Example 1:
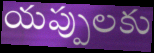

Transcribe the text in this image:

యప్పులకు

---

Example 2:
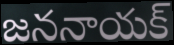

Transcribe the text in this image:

జననాయక్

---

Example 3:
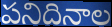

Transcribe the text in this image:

పనిదినాల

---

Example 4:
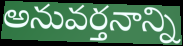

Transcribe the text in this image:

అనువర్తనాన్ని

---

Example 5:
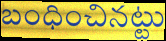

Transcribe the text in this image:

బంధించినట్టు